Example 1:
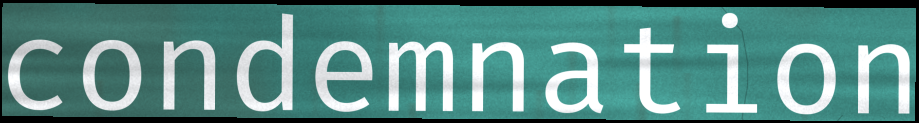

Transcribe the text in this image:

condemnation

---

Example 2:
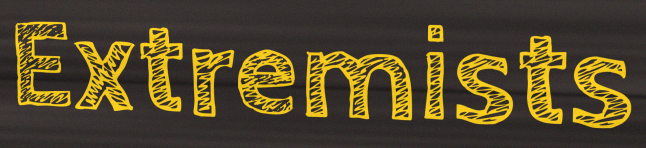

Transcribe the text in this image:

Extremists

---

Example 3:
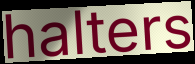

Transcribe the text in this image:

halters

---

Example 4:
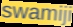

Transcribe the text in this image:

swamiji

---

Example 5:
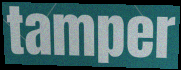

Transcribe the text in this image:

tamper